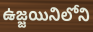
ఉజ్జయినిలోని